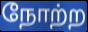
நோற்ற